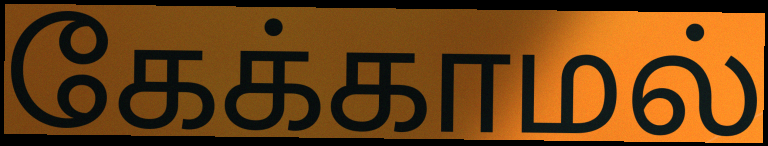
கேக்காமல்